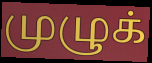
முழுக்